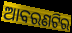
ଆବରଣଟିର